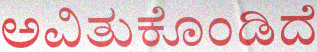
ಅವಿತುಕೊಂಡಿದೆ